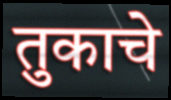
तुकाचे